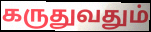
கருதுவதும்